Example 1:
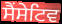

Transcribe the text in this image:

ਸੈਂਸੇਟਿਵ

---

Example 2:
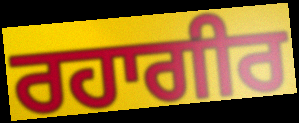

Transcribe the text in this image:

ਰਹਾਗੀਰ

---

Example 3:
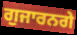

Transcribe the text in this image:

ਗੁਜਾਰਨਗੇ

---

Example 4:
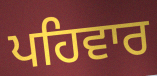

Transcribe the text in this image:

ਪਹਿਵਾਰ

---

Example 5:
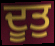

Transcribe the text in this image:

ਦੂਤੁ